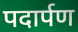
पदार्पण